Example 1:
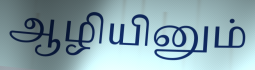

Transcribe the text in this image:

ஆழியினும்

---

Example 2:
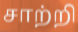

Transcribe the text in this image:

சாற்றி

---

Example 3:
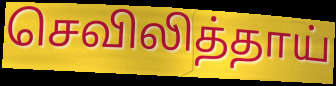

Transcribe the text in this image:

செவிலித்தாய்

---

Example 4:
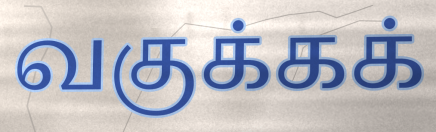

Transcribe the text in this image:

வகுக்கக்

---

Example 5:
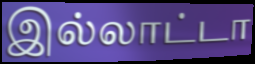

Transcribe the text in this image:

இல்லாட்டா